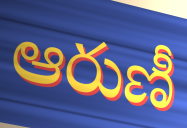
ఆరుణీ